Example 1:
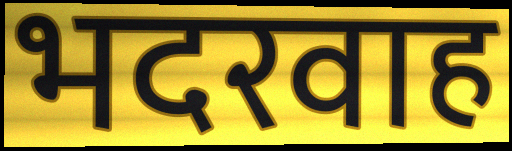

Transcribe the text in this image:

भदरवाह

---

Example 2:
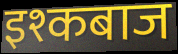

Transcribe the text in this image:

इश्कबाज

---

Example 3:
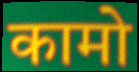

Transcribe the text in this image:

कामो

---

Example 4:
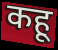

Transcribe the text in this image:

कहू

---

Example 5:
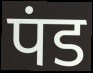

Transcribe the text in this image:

पंड